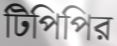
টিপিপির